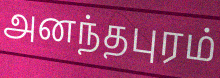
அனந்தபுரம்